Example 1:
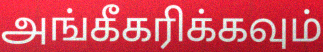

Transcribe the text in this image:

அங்கீகரிக்கவும்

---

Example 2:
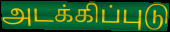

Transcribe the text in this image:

அடக்கிப்புடு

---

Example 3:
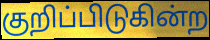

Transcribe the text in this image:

குறிப்பிடுகின்ற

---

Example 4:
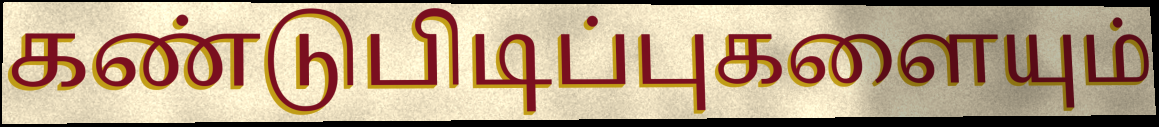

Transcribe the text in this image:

கண்டுபிடிப்புகளையும்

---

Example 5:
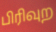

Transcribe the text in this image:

பிரிவுற